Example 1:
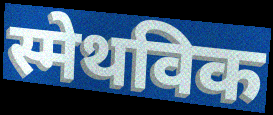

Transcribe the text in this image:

स्मेथविक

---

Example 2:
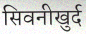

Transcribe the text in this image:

सिवनीखुर्द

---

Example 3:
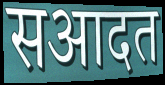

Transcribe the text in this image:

सआदत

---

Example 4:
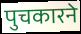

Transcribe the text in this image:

पुचकारने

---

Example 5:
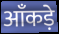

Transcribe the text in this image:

आँकड़े